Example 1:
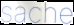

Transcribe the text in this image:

sache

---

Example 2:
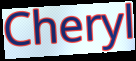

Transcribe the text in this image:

Cheryl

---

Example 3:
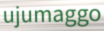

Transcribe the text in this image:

ujumaggo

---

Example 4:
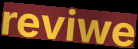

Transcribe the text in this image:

reviwe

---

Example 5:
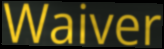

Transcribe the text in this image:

Waiver